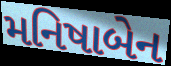
મનિષાબેન